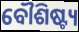
ବୌଶିଷ୍ଟ୍ୟ